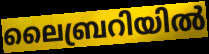
ലൈബ്രറിയിൽ